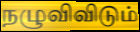
நழுவிவிடும்